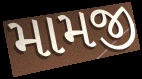
મામજી